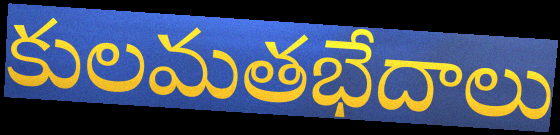
కులమతభేదాలు